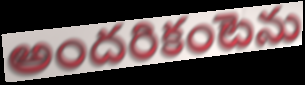
అందరికంటెను